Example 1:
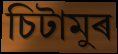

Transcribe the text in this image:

চিটামুৰ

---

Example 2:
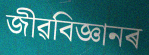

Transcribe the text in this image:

জীৱবিজ্ঞানৰ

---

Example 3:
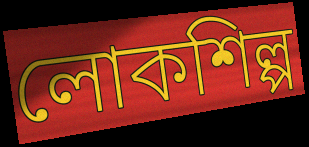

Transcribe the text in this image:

লোকশিল্প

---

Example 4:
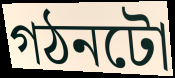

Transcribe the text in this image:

গঠনটো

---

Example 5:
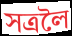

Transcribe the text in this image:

সত্ৰলৈ